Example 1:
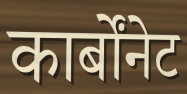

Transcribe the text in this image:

कार्बोंनेट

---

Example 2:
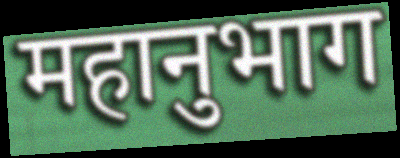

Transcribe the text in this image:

महानुभाग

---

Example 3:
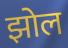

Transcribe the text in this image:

झोल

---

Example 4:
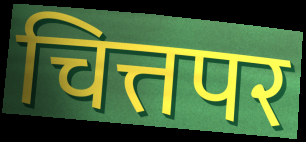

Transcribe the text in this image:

चित्तपर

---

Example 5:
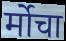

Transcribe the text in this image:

र्मोचा